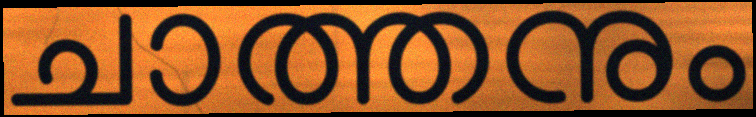
ചാത്തനും